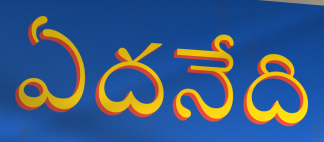
ఏదనేది